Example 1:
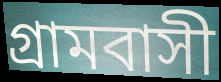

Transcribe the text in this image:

গ্রামবাসী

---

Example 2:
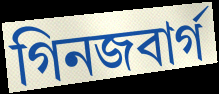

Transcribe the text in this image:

গিনজবার্গ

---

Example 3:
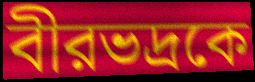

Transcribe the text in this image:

বীরভদ্রকে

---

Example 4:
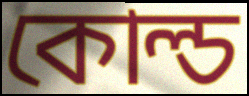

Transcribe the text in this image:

কোল্ড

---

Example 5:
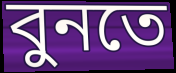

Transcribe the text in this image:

বুনতে